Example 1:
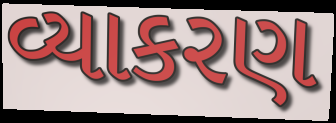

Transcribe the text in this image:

વ્યાકરણ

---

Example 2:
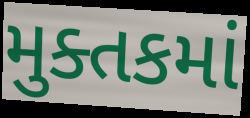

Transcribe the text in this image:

મુક્તકમાં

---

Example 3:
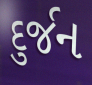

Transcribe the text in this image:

દુર્જન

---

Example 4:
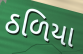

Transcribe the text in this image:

ઠળિયા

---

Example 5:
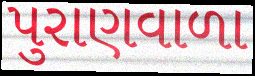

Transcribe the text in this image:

પુરાણવાળા